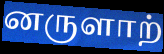
னருளாற்